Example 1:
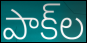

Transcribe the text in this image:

పాక్‌ల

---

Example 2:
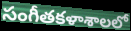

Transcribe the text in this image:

సంగీతకళాశాలలో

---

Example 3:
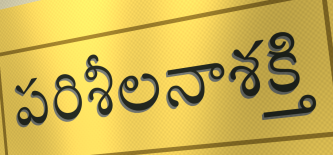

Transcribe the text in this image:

పరిశీలనాశక్తి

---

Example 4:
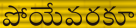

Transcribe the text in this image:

పోయేవరకూ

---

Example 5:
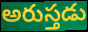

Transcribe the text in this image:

అరుస్తడు